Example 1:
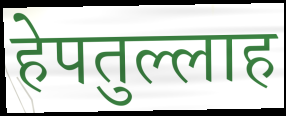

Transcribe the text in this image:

हेपतुल्लाह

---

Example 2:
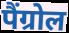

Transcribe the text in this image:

पैंग्रोल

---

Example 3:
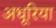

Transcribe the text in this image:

अधूरिया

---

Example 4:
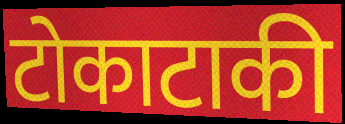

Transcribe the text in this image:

टोकाटाकी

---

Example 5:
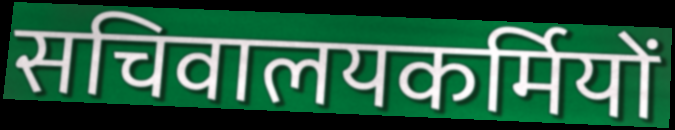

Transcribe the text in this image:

सचिवालयकर्मियों